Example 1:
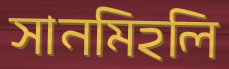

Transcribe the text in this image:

সানমিহলি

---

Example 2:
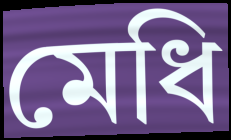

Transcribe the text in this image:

মেধি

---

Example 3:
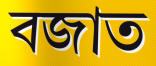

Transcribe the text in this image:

বজাত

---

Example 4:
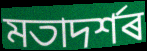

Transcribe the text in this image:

মতাদৰ্শৰ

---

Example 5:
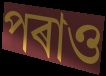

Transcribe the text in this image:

পৰাও